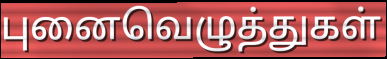
புனைவெழுத்துகள்